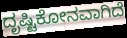
ದೃಷ್ಟಿಕೋನವಾಗಿದೆ